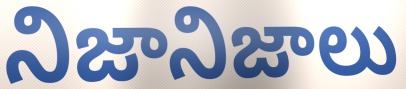
నిజానిజాలు